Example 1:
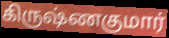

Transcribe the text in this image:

கிருஷ்ணகுமார்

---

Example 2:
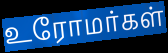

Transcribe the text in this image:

உரோமர்கள்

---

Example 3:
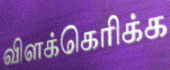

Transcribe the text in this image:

விளக்கெரிக்க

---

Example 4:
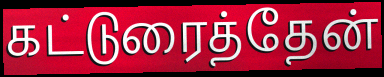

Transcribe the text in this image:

கட்டுரைத்தேன்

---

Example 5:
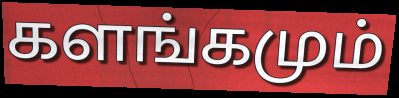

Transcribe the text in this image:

களங்கமும்